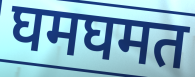
घमघमत